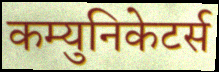
कम्युनिकेटर्स